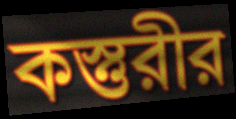
কস্তুরীর